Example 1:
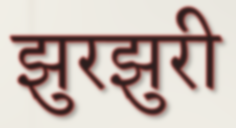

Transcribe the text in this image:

झुरझुरी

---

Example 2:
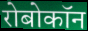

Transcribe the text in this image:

रोबोकॉन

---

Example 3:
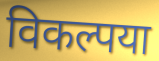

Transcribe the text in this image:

विकल्पया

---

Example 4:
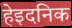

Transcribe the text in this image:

हेइदनिक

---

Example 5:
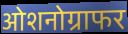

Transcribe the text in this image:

ओशनोग्राफर